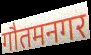
गौतमनगर